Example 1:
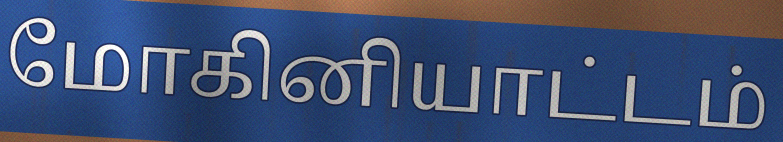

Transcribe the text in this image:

மோகினியாட்டம்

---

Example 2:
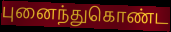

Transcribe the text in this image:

புனைந்துகொண்ட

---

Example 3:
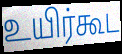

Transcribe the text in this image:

உயிர்கூட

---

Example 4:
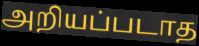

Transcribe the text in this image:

அறியப்படாத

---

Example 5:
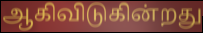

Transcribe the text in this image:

ஆகிவிடுகின்றது